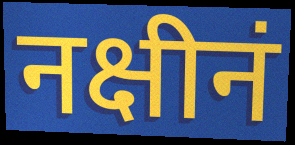
नक्षीनं